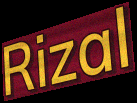
Rizal